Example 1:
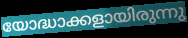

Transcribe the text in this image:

യോദ്ധാക്കളായിരുന്നു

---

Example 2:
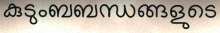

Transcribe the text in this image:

കുടുംബബന്ധങ്ങളുടെ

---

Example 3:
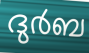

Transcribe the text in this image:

ദുർബ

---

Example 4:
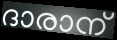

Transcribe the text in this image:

ദാരാന്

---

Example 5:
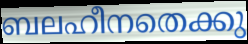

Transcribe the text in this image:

ബലഹീനതെക്കു